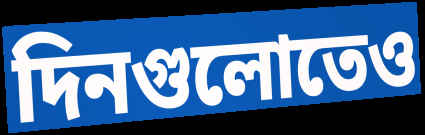
দিনগুলোতেও